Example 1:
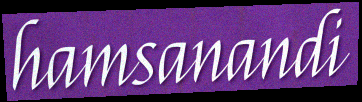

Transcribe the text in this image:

hamsanandi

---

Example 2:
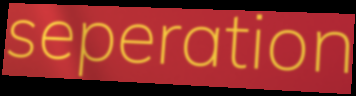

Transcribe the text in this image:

seperation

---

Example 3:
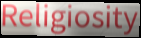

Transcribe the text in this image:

Religiosity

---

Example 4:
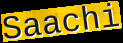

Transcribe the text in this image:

Saachi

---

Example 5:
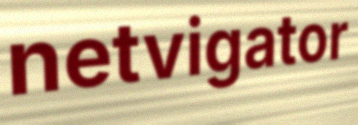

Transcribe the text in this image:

netvigator